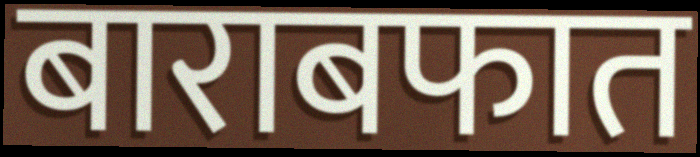
बाराबफात